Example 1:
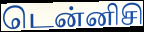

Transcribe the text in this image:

டென்னிசி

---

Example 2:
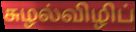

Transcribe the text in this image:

சுழல்விழிப்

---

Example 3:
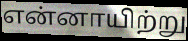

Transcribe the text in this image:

என்னாயிற்று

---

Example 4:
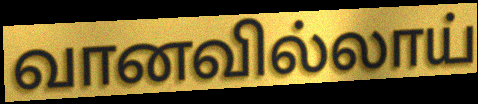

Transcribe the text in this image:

வானவில்லாய்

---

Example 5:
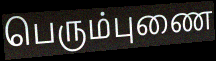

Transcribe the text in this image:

பெரும்புணை